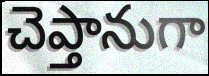
చెప్తానుగా